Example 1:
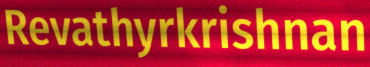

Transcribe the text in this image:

Revathyrkrishnan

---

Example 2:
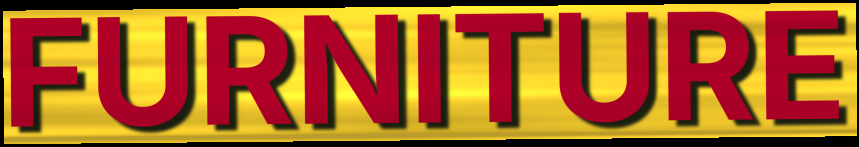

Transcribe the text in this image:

FURNITURE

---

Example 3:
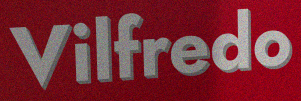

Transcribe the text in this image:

Vilfredo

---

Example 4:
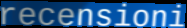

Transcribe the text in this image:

recensioni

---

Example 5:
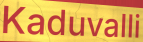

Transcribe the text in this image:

Kaduvalli